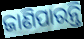
ଜାଣିପାରନ୍ତି